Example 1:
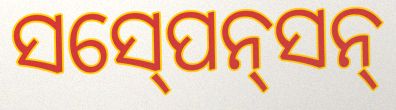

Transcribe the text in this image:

ସସ୍‍ପେନ୍‍ସନ୍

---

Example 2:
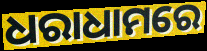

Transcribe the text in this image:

ଧରାଧାମରେ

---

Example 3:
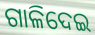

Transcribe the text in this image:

ଗାଳିଦେଇ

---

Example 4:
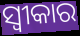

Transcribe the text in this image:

ସ୍ଵୀକାର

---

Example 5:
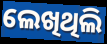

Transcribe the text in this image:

ଲେଖିଥିଲି